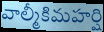
వాల్మీకిమహర్షి